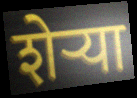
शेऱ्या